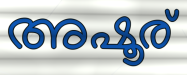
അഷൂര്